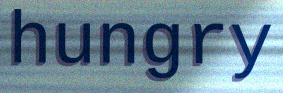
hungry